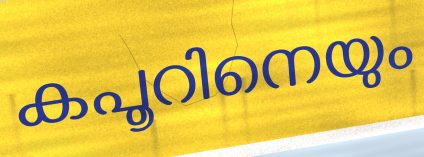
കപൂറിനെയും